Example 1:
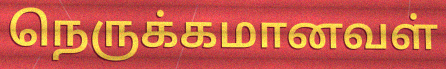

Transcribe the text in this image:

நெருக்கமானவள்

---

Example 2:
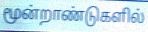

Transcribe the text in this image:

மூன்றாண்டுகளில்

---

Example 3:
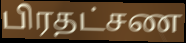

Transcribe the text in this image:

பிரதட்சண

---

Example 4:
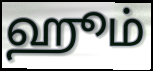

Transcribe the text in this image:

ஹூம்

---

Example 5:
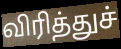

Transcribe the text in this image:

விரித்துச்